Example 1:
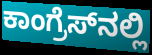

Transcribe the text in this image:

ಕಾಂಗ್ರೆಸ್‌ನಲ್ಲಿ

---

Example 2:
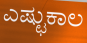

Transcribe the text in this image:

ಎಷ್ಟುಕಾಲ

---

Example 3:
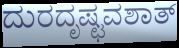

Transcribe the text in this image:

ದುರದೃಷ್ಟವಶಾತ್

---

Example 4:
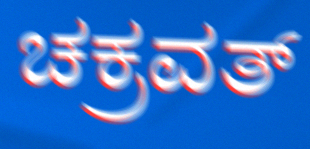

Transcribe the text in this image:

ಚಕ್ರವತ್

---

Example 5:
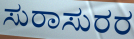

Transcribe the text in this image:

ಸುರಾಸುರರ